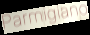
Parmigiano